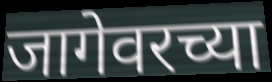
जागेवरच्या